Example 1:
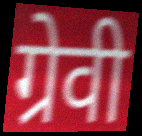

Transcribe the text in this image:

ग्रेवी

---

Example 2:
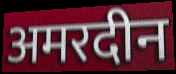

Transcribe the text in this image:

अमरदीन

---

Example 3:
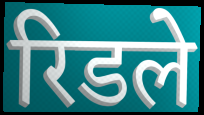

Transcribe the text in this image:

रिडले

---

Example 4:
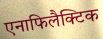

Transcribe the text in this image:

एनाफिलैक्टिक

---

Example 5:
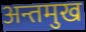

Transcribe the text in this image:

अन्तमुख